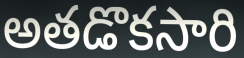
అతడొకసారి